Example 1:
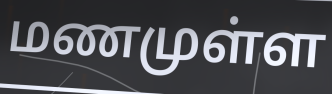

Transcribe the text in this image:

மணமுள்ள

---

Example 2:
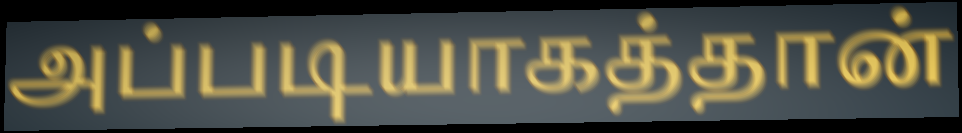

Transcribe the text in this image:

அப்படியாகத்தான்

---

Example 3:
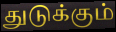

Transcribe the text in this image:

துடுக்கும்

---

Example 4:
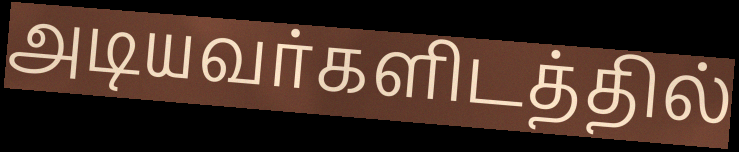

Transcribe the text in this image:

அடியவர்களிடத்தில்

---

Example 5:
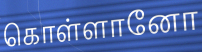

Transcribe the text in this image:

கொள்ளானோ